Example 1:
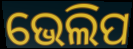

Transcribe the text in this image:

ଭେଲିପ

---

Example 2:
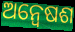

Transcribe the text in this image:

ଅନ୍ୱେଷଶ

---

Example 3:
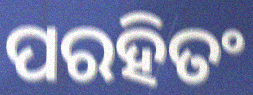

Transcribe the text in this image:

ପରହିତଂ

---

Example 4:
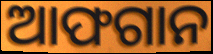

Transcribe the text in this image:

ଆଫଗାନ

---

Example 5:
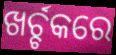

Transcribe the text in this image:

ଖର୍ଚ୍ଚକରେ